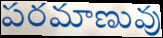
పరమాణువు